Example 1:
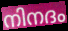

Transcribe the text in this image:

നിനദം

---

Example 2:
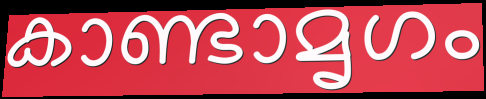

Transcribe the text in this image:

കാണ്ടാമൃഗം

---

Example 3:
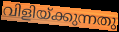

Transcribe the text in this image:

വിളിയ്ക്കുന്നതു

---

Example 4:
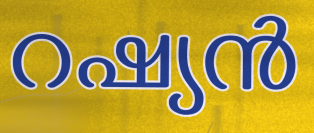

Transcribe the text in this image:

റഷ്യൻ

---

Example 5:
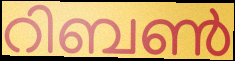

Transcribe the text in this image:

റിബൺ